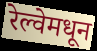
रेल्वेमधून